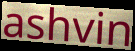
ashvin